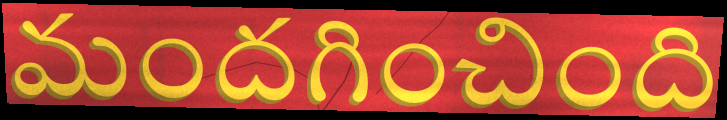
మందగించింది